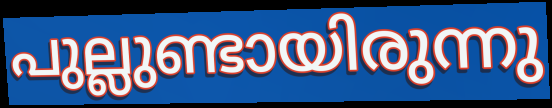
പുല്ലുണ്ടായിരുന്നു